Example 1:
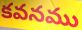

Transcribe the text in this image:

కవనము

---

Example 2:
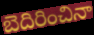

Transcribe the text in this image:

బెదిరించినా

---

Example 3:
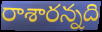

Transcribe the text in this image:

రాశారన్నది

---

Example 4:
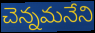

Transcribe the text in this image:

చెన్నమనేని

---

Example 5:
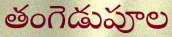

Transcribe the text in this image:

తంగెడుపూల